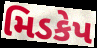
મિડકેપ